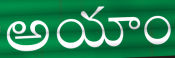
అయాం